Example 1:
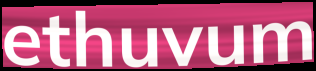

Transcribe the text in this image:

ethuvum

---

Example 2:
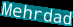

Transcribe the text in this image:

Mehrdad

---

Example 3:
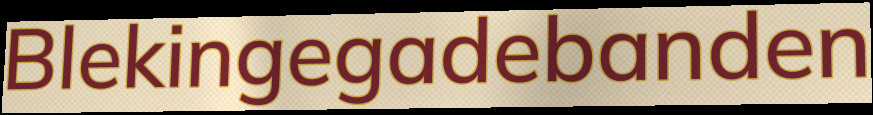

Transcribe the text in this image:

Blekingegadebanden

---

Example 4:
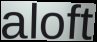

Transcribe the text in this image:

aloft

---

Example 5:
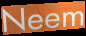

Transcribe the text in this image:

Neem